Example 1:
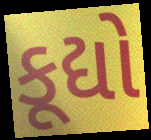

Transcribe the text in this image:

કૂદ્યો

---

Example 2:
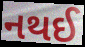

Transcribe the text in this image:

નથઈ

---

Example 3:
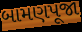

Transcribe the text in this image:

બામણપૂજા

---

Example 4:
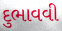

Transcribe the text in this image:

દુભાવવી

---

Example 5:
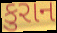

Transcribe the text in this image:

કુરાન